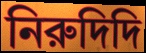
নিরুদিদি